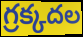
గ్రక్కదల